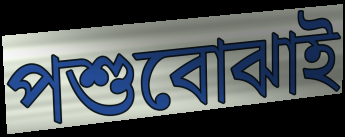
পশুবোঝাই